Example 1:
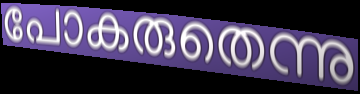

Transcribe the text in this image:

പോകരുതെന്നു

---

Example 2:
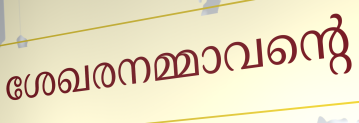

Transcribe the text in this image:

ശേഖരനമ്മാവന്റെ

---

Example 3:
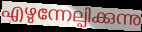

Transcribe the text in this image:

എഴുന്നേല്പിക്കുന്നു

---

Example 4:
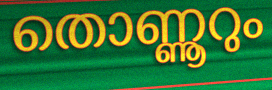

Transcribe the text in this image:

തൊണ്ണൂറും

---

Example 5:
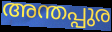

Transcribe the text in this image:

അന്തപ്പുര